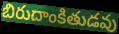
బిరుదాంకితుడవు